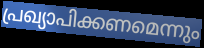
പ്രഖ്യാപിക്കണമെന്നും